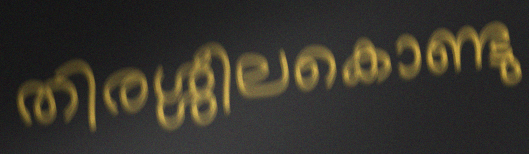
തിരശ്ശീലകൊണ്ടു